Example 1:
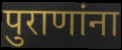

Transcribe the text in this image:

पुराणांना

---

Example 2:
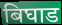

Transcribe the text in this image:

बिघाड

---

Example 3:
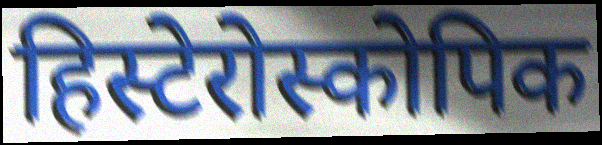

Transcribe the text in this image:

हिस्टेरोस्कोपिक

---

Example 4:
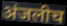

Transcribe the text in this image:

अंजलीच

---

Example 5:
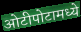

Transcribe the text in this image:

ओटीपोटामध्ये